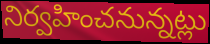
నిర్వహించనున్నట్లు